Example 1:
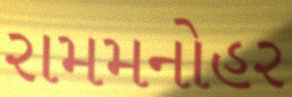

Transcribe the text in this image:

રામમનોહર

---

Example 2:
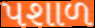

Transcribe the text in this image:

પશાળ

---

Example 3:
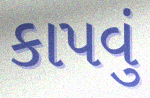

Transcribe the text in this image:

કાપવું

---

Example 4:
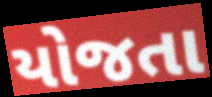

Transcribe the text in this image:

યોજતા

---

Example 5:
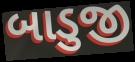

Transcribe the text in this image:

બાડુજી